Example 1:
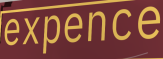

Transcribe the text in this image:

expence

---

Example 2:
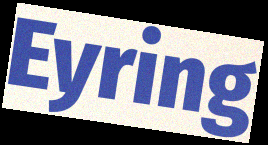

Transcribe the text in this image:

Eyring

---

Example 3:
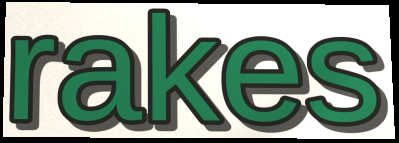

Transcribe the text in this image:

rakes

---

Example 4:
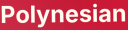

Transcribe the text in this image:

Polynesian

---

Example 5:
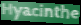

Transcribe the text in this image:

Hyacinthe